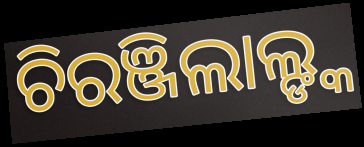
ଚିରଞ୍ଜିଲାଲ୍ଙ୍କ